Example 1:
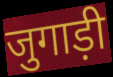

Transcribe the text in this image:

जुगाड़ी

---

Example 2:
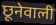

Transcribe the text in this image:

छूनेवाली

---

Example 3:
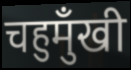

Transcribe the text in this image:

चहुमुँखी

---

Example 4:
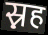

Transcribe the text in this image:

स्नह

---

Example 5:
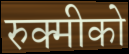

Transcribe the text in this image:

रुक्मीको